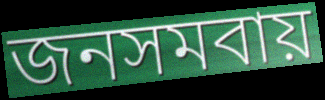
জনসমবায়